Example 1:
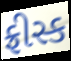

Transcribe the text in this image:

ફ્રીસ્ક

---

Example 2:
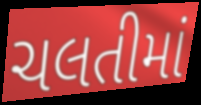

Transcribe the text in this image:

ચલતીમાં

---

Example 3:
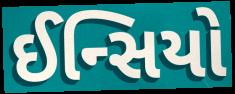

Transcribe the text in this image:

ઈન્સિયો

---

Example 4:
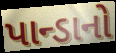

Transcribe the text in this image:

પાન્ડાનો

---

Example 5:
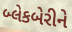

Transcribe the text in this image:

બ્લેકબેરીને